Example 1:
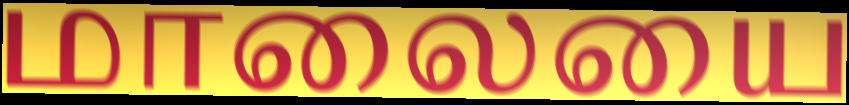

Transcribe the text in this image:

மாலையை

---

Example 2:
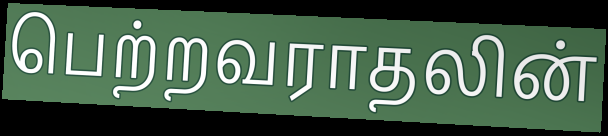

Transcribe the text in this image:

பெற்றவராதலின்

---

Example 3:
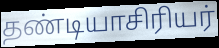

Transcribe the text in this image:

தண்டியாசிரியர்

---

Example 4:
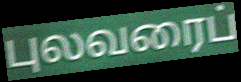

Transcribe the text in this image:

புலவரைப்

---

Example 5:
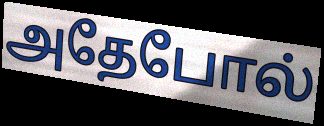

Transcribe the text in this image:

அதேபோல்